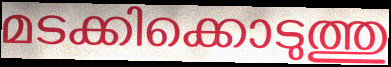
മടക്കിക്കൊടുത്തു